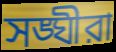
সঙ্ঘীরা